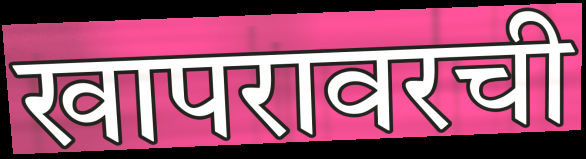
खापरावरची